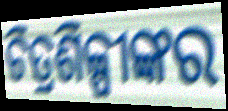
ଚିତ୍ରଶିଳ୍ପୀଙ୍କର